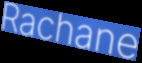
Rachane